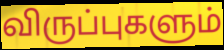
விருப்புகளும்